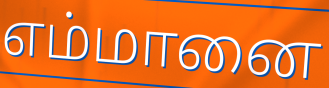
எம்மானை